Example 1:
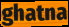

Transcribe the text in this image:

ghatna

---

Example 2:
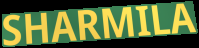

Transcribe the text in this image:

SHARMILA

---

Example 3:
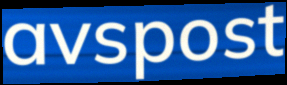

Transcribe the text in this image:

avspost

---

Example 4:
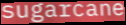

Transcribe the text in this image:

sugarcane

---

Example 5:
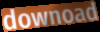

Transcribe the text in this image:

downoad